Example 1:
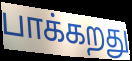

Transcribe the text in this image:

பாக்கறது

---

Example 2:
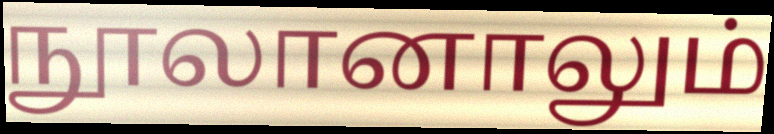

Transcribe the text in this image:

நூலானாலும்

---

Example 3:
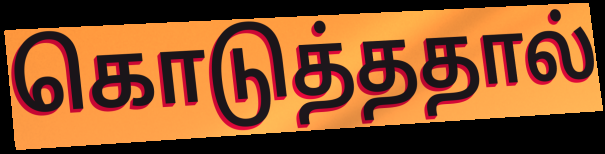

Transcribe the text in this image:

கொடுத்ததால்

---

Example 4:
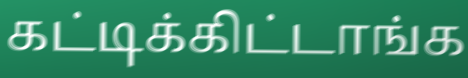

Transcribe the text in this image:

கட்டிக்கிட்டாங்க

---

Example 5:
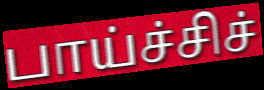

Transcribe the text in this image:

பாய்ச்சிச்